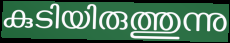
കുടിയിരുത്തുന്നു